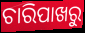
ଚାରିପାଖରୁ